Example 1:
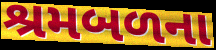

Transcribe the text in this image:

શ્રમબળના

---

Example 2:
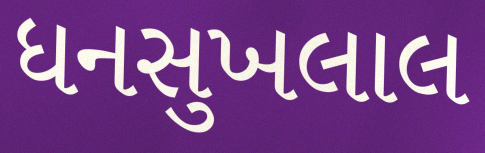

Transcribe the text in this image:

ધનસુખલાલ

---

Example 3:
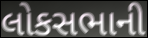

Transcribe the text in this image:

લોકસભાની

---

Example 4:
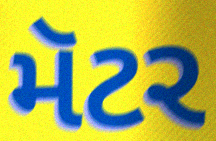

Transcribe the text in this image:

મૅટર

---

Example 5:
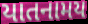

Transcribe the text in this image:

યાતનામય